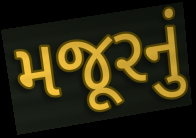
મજૂરનું